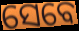
ସେବେ